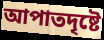
আপাতদৃষ্টে